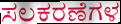
ಸಲಕರಣೆಗಳ